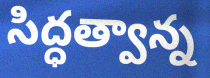
సిద్ధత్వాన్న